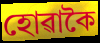
হোৱাকৈ